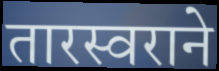
तारस्वराने